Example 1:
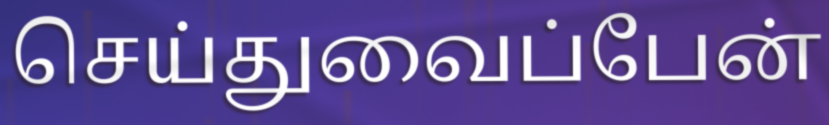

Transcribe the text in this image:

செய்துவைப்பேன்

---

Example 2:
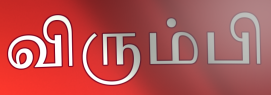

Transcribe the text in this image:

விரும்பி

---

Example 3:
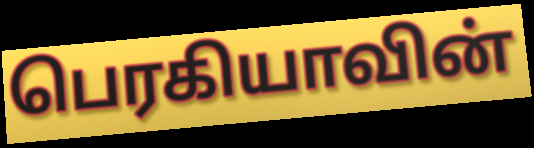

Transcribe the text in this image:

பெரகியாவின்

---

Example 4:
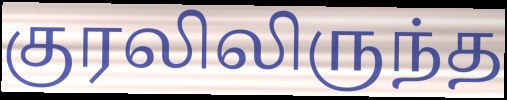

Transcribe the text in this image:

குரலிலிருந்த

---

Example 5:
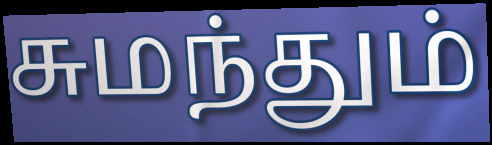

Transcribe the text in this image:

சுமந்தும்